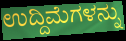
ಉದ್ದಿಮೆಗಳನ್ನು